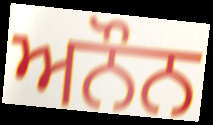
ਅਨੌਨ